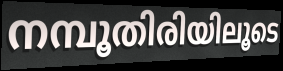
നമ്പൂതിരിയിലൂടെ